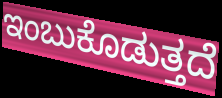
ಇಂಬುಕೊಡುತ್ತದೆ